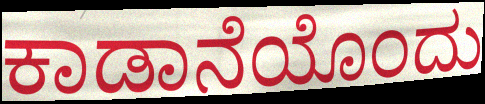
ಕಾಡಾನೆಯೊಂದು